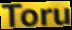
Toru